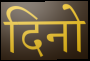
दिनो